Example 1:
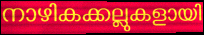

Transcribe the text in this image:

നാഴികക്കല്ലുകളായി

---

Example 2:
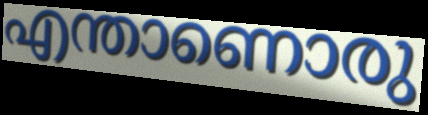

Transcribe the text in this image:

എന്താണൊരു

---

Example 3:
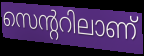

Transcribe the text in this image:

സെന്ററിലാണ്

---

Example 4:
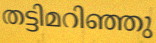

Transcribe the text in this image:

തട്ടിമറിഞ്ഞു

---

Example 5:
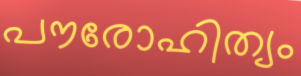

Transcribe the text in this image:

പൗരോഹിത്യം